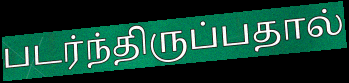
படர்ந்திருப்பதால்